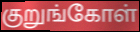
குறுங்கோள்